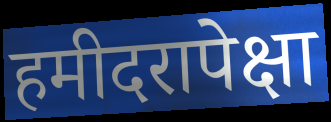
हमीदरापेक्षा